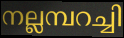
നല്ലമ്പറച്ചി